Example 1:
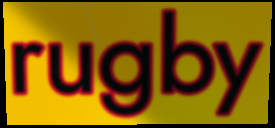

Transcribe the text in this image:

rugby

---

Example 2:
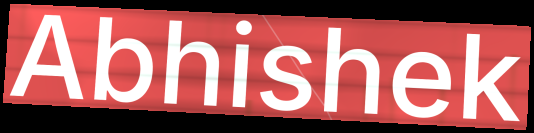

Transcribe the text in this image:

Abhishek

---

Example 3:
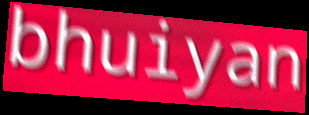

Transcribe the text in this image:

bhuiyan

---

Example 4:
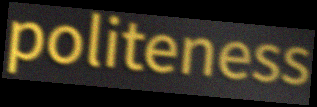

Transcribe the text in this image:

politeness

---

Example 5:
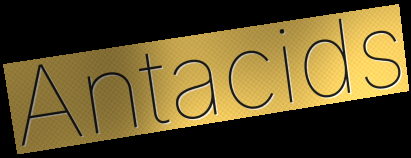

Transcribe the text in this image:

Antacids